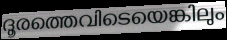
ദൂരത്തെവിടെയെങ്കിലും